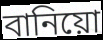
বানিয়ো